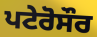
ਪਟੇਰੋਸੌਰ